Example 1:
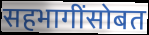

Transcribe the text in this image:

सहभागींसोबत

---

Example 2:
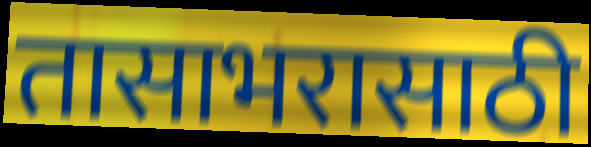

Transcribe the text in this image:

तासाभरासाठी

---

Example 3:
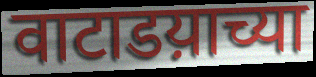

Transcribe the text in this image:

वाटाडय़ाच्या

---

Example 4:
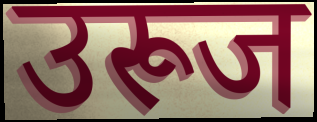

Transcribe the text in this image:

उरूज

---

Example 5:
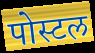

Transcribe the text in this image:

पोस्टल